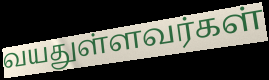
வயதுள்ளவர்கள்